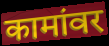
कामांवर